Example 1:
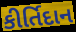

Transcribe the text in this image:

કીર્તિદાન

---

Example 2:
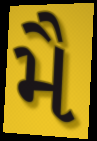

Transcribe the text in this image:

મૈ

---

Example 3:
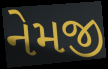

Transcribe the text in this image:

નેમજી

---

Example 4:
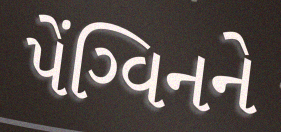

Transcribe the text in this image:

પેંગ્વિનને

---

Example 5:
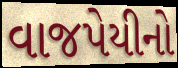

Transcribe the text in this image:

વાજપેયીનો